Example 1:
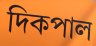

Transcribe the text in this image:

দিকপাল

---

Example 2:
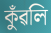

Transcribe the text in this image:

কুঁৱলি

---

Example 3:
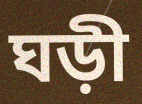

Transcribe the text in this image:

ঘড়ী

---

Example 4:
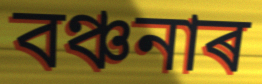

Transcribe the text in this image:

বঞ্চনাৰ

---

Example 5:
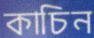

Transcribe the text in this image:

কাচিন